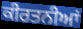
ਕੀਰਤਨੀਆਂ